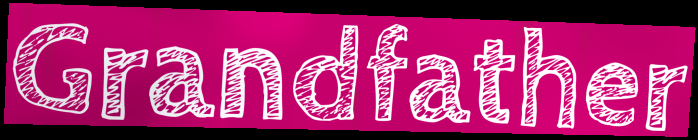
Grandfather